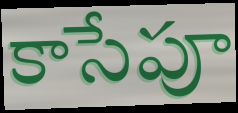
కాసేపూ